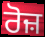
ਰੋਜ਼